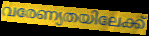
വരേണ്യതയിലേക്ക്